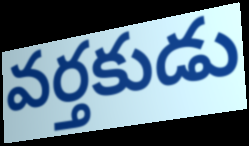
వర్తకుడు